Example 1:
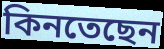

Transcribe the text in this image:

কিনতেছেন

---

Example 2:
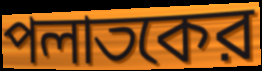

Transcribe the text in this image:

পলাতকের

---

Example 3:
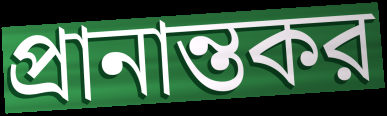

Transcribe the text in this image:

প্রানান্তকর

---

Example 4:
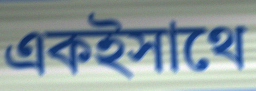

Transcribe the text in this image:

একইসাথে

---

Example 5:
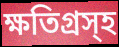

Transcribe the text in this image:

ক্ষতিগ্রস্হ